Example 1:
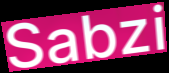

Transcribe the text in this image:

Sabzi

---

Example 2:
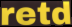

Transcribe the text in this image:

retd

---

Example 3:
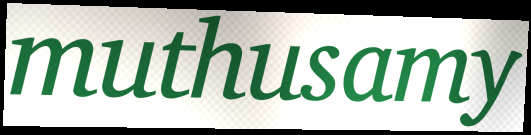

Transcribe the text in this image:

muthusamy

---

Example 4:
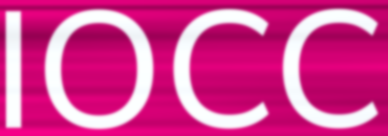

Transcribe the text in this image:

IOCC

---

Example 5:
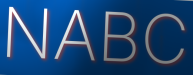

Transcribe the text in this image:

NABC